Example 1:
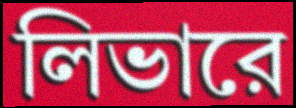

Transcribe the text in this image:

লিভারে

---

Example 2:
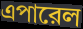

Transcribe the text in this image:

এপারেল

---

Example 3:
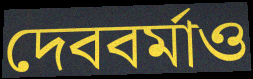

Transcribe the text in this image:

দেববর্মাও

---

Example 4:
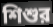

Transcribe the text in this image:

শিশুর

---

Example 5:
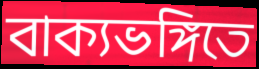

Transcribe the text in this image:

বাক্যভঙ্গিতে